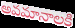
అవమానాలకి